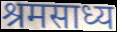
श्रमसाध्य